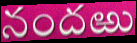
నందఱు